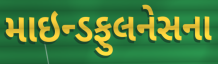
માઇન્ડફુલનેસના